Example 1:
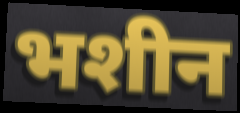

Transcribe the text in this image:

भशीन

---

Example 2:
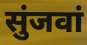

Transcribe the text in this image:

सुंजवां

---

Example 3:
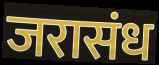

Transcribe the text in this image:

जरासंध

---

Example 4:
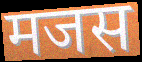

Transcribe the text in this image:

मजस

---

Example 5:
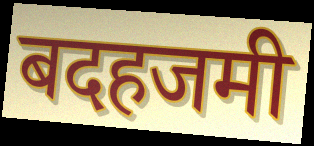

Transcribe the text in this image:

बदहजमी